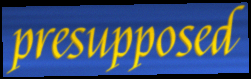
presupposed